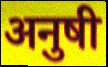
अनुषी